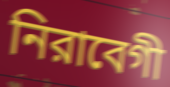
নিরাবেগী